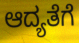
ಆದ್ಯತೆಗೆ